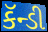
કૅન્ડી